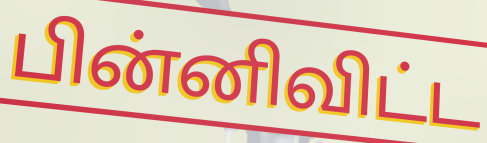
பின்னிவிட்ட